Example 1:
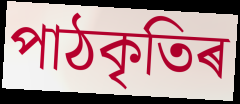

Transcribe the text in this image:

পাঠকৃতিৰ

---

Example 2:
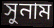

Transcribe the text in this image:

সুনাম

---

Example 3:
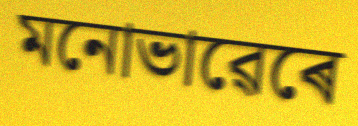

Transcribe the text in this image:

মনোভাৱেৰে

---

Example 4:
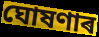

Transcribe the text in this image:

ঘোষণাৰ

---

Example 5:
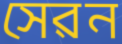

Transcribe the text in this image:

সেৱন